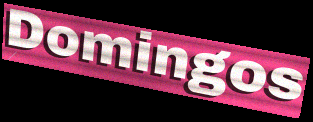
Domingos